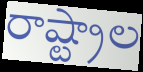
రాష్ట్రాల